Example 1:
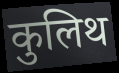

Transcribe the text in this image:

कुलिथ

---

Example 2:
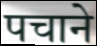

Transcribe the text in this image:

पचाने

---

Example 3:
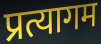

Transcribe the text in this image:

प्रत्यागम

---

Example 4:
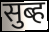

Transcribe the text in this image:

सुब्ह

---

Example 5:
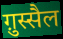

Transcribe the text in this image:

ग़ुस्सैल